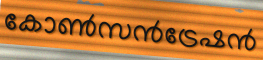
കോൺസൻട്രേഷൻ